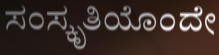
ಸಂಸ್ಕೃತಿಯೊಂದೇ